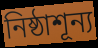
নিষ্ঠাশূন্য